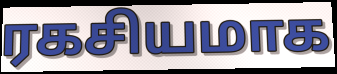
ரகசியமாக